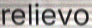
relievo